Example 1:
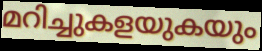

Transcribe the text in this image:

മറിച്ചുകളയുകയും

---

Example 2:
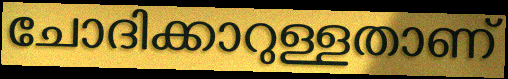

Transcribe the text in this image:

ചോദിക്കാറുള്ളതാണ്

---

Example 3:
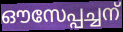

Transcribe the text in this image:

ഔസേപ്പച്ചന്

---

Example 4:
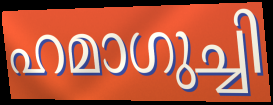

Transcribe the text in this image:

ഹമാഗുച്ചി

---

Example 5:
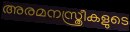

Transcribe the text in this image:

അരമനസ്ത്രീകളുടെ